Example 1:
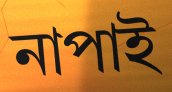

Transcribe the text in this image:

নাপাই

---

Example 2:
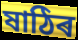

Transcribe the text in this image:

ষাঠিৰ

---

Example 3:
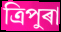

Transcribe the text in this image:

ত্ৰিপুৰা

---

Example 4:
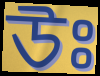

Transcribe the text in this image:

উঃ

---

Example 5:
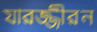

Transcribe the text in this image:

যাৱজ্জীৱন